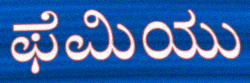
ಫೆಮಿಯು